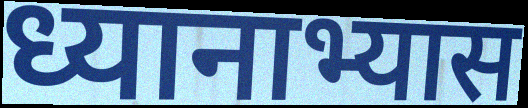
ध्यानाभ्यास